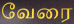
வேரை